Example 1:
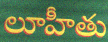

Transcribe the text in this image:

లూహీతు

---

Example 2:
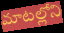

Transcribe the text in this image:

మాటల్లోని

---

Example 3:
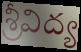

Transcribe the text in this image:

శ్రీవిద్య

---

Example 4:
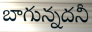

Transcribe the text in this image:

బాగున్నదనీ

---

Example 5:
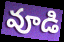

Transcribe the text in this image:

వూడి